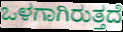
ಒಳಗಾಗಿರುತ್ತದೆ